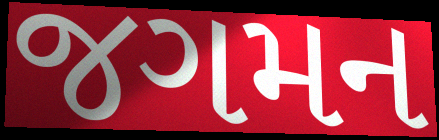
જગમન